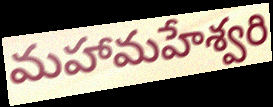
మహామహేశ్వరి